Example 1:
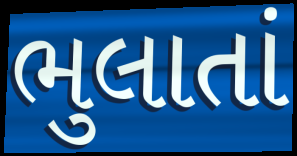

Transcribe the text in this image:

ભુલાતાં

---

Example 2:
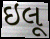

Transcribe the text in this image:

ઇલૂ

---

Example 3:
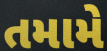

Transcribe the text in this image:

તમામે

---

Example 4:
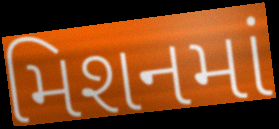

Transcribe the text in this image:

મિશનમાં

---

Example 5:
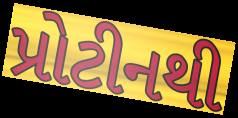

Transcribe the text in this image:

પ્રોટીનથી